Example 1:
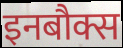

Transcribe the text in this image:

इनबौक्स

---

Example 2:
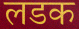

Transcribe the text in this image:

लडक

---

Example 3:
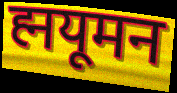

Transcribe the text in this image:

ह्मयूमन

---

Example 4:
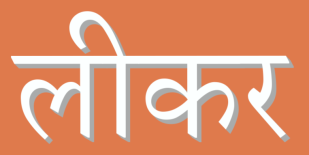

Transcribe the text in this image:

लीकर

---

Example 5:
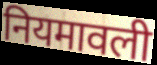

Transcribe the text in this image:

नियमावली